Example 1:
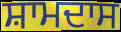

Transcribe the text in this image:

ਸ਼ਾਮਦਾਸ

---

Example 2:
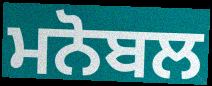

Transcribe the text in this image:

ਮਨੋਬਲ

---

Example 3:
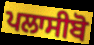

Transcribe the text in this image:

ਪਲਾਸੀਬੋ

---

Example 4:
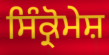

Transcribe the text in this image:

ਸਿੰਕ੍ਰੋਮੇਸ਼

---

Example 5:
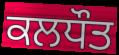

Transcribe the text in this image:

ਕਲਧੌਤ